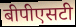
बीपीएसटी